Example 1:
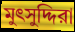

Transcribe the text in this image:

মুৎসুদ্দিরা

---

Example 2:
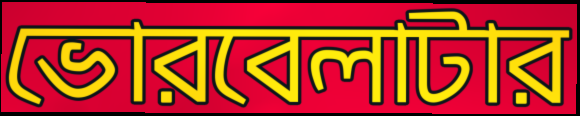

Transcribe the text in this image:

ভোরবেলাটার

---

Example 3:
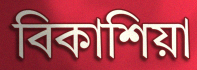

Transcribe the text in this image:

বিকাশিয়া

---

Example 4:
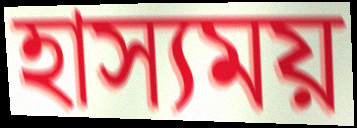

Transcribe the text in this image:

হাস্যময়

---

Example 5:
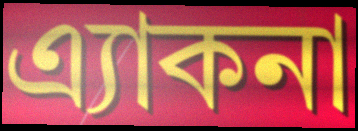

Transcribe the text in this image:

এ্যাকনা